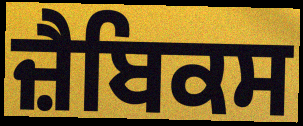
ਜ਼ੈਬਿਕਸ